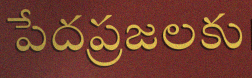
పేదప్రజలకు